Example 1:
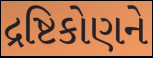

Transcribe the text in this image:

દ્રષ્ટિકોણને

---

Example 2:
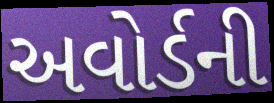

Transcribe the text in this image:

અવોર્ડની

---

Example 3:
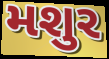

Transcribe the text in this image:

મશુર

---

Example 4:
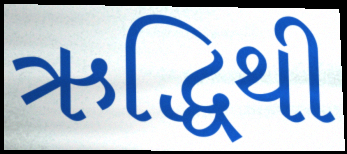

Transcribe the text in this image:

ઋદ્ધિથી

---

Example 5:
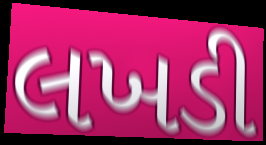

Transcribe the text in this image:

લખડી